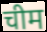
चीम